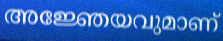
അജ്ഞേയവുമാണ്